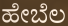
ಹೇಬೆಲ